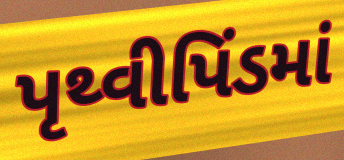
પૃથ્વીપિંડમાં